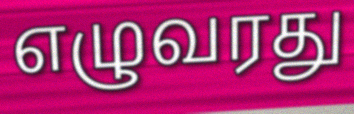
எழுவரது